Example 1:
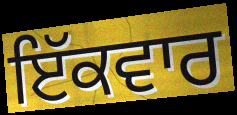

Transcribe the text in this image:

ਇੱਕਵਾਰ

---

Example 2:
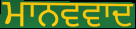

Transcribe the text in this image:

ਮਾਨਵਵਾਦ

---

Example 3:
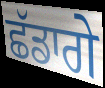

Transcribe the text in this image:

ਛੱਡਾਗੇ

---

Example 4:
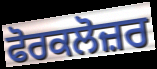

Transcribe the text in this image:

ਫੋਰਕਲੋਜ਼ਰ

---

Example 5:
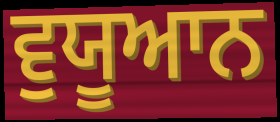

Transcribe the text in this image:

ਵੁਯੂਆਨ